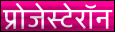
प्रोजेस्टेरॉन